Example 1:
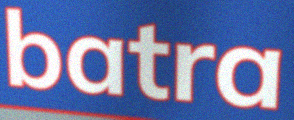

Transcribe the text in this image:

batra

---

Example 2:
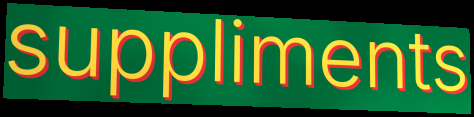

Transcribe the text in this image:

suppliments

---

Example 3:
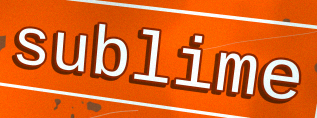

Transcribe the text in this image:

sublime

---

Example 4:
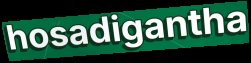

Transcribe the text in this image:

hosadigantha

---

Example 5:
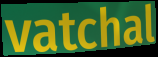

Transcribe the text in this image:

vatchal